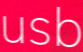
usb